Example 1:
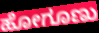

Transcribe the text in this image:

ಹೋಗೂಣು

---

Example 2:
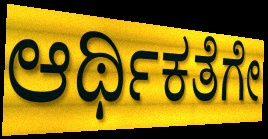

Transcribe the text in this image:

ಆರ್ಥಿಕತೆಗೇ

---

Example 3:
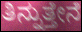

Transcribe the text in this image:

ತಿನ್ನುತ್ತೇನೆ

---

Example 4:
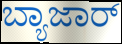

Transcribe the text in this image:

ಬ್ಯಾಜಾರ್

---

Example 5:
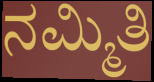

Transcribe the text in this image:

ನಮ್ಮಿತಿ